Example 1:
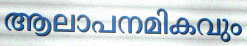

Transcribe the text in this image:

ആലാപനമികവും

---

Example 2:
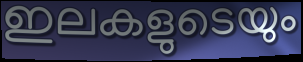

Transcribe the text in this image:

ഇലകളുടെയും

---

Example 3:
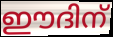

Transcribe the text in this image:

ഈദിന്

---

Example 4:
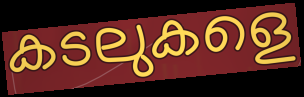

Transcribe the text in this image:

കടലുകളെ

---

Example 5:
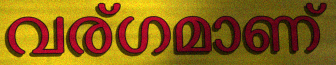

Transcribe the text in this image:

വര്ഗമാണ്